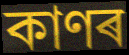
কাণৰ